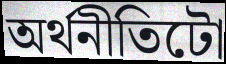
অৰ্থনীতিটো